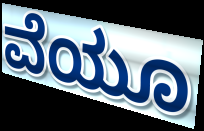
ವೆಯೂ